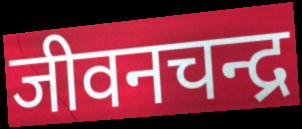
जीवनचन्द्र